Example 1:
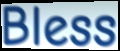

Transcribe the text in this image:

Bless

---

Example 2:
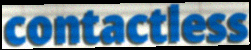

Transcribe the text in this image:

contactless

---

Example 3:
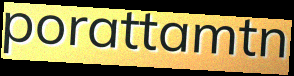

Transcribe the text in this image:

porattamtn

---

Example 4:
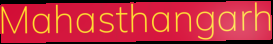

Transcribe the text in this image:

Mahasthangarh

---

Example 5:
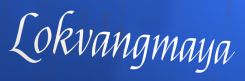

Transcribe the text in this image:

Lokvangmaya